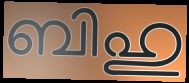
ബിഹു